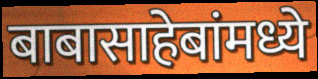
बाबासाहेबांमध्ये